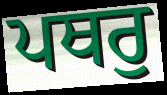
ਪਥਰੁ